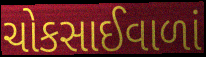
ચોકસાઈવાળાં